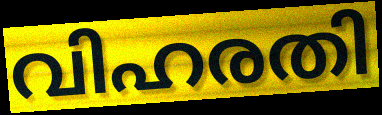
വിഹരതി